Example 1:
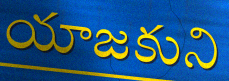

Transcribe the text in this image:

యాజకుని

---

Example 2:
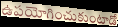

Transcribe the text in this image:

ఉపయోగించుకుంటాడో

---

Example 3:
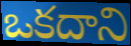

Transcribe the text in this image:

ఒకదాని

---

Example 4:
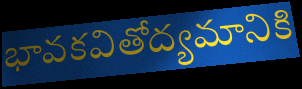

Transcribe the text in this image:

భావకవితోద్యమానికి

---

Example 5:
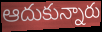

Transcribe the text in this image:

ఆదుకున్నారు